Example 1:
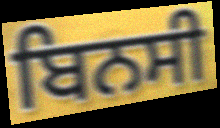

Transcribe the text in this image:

ਬਿਨਸੀ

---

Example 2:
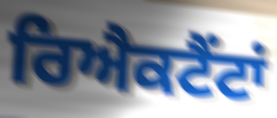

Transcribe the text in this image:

ਰਿਐਕਟੈਂਟਾਂ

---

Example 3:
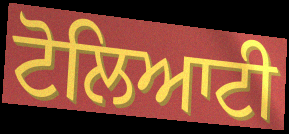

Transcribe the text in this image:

ਟੋਲਿਆਟੀ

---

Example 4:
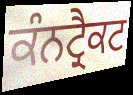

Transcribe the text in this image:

ਕੰਨਟ੍ਰੈਕਟ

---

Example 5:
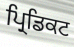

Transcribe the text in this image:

ਪ੍ਰਿਡਿਕਟ